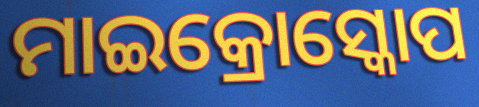
ମାଇକ୍ରୋସ୍କୋପ